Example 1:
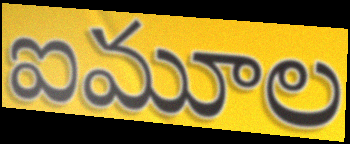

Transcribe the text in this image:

ఐమూల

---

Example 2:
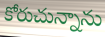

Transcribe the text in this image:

కోరుచున్నాను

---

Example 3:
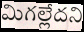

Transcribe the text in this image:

మిగల్లేదని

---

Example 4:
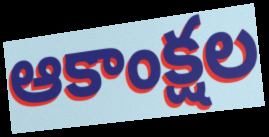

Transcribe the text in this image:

ఆకాంక్షల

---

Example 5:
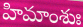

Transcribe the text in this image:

హిమాంశుః